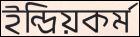
ইন্দ্রিয়কর্ম